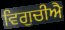
ਵਿਗੁਚੀਐ